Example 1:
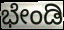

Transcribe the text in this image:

ಭೇಂಡಿ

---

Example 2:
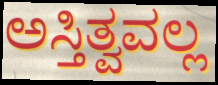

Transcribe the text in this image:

ಅಸ್ತಿತ್ವವಲ್ಲ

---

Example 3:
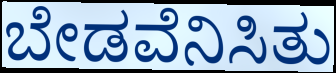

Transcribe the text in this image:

ಬೇಡವೆನಿಸಿತು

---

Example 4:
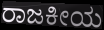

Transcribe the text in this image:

ರಾಜಕೀಯ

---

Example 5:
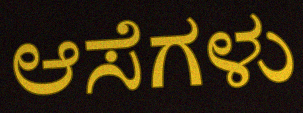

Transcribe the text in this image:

ಆಸೆಗಳು